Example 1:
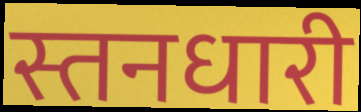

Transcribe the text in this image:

स्‍तनधारी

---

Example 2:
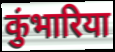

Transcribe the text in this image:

कुंभारिया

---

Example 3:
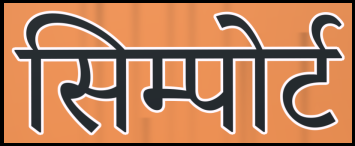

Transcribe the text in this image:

सिम्पोर्ट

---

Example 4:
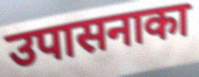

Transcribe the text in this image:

उपासनाका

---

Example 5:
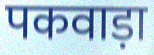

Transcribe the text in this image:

पकवाड़ा